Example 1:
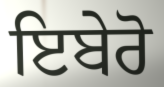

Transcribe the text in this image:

ਇਬੇਰੋ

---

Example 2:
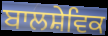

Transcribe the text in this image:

ਬਾਲਸ਼ੇਵਿਕ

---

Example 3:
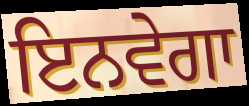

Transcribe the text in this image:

ਇਨਵੇਗਾ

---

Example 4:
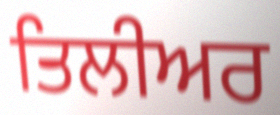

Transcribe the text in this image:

ਤਿਲੀਅਰ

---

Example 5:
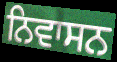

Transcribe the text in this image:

ਨਿਵਾਸਨ